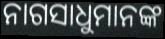
ନାଗସାଧୁମାନଙ୍କ